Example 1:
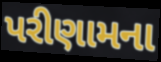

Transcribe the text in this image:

પરીણામના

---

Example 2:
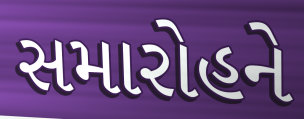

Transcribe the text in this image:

સમારોહને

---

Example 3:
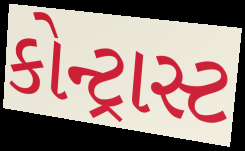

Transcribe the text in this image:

કોન્ટ્રાસ્ટ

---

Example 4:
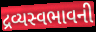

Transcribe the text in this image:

દ્રવ્યસ્વભાવની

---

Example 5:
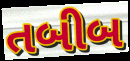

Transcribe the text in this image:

તબીબ